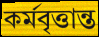
কর্মবৃত্তান্ত